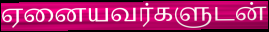
ஏனையவர்களுடன்